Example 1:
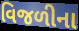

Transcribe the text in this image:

વિજળીના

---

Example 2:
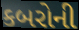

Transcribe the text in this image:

કબરોની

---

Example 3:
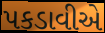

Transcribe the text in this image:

પકડાવીએ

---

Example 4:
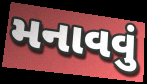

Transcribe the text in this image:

મનાવવું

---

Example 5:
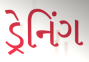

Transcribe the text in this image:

ડ્રેનિંગ